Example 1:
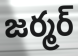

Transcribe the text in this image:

జర్మర్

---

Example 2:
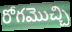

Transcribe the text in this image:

రోగమొచ్చి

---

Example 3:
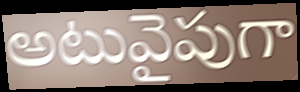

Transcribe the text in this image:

అటువైపుగా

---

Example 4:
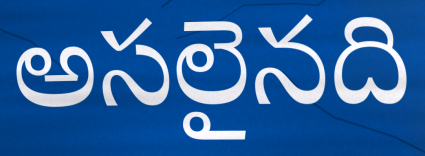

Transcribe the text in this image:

అసలైనది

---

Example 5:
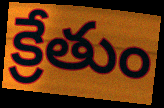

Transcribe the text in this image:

క్రేతుం